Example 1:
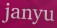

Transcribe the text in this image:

janyu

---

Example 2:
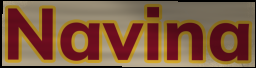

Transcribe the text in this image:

Navina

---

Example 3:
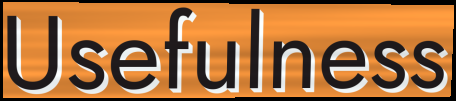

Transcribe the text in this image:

Usefulness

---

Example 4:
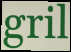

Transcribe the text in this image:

gril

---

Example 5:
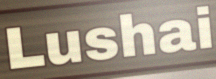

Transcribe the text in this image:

Lushai